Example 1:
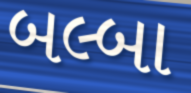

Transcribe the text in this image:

બલ્બા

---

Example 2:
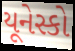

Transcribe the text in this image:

યૂનેસ્કો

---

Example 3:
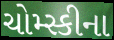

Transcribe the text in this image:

ચોમ્સ્કીના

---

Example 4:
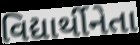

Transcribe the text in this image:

વિદ્યાર્થીનેતા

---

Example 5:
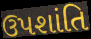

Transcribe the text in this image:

ઉપશાંતિ